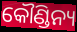
କୌଣ୍ଡିନ୍ୟ